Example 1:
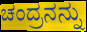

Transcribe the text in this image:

ಚಂದ್ರನನ್ನು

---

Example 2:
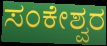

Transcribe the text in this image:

ಸಂಕೇಶ್ವರ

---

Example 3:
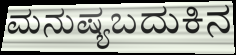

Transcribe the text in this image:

ಮನುಷ್ಯಬದುಕಿನ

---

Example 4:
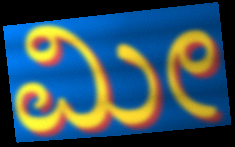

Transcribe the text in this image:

ಮೀ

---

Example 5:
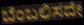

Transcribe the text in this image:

ಬೆಂಬಲಿಸದೇ